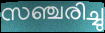
സഞ്ചരിച്ചു